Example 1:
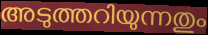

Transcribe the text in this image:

അടുത്തറിയുന്നതും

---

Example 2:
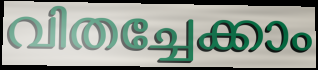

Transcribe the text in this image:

വിതച്ചേക്കാം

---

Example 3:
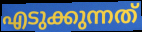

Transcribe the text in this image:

എടുക്കുന്നത്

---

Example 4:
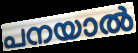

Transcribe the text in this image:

പനയാൽ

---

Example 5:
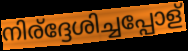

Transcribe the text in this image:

നിര്ദ്ദേശിച്ചപ്പോള്